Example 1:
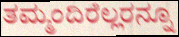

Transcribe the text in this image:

ತಮ್ಮಂದಿರೆಲ್ಲರನ್ನೂ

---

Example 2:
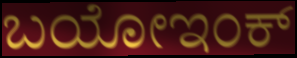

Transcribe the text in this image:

ಬಯೋಇಂಕ್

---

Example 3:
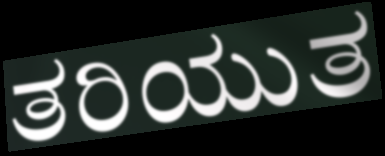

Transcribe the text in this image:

ತರಿಯುತ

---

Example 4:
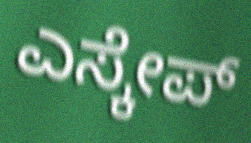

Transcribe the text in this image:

ಎಸ್ಕೇಪ್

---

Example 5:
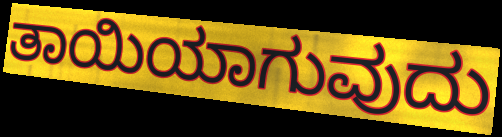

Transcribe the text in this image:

ತಾಯಿಯಾಗುವುದು